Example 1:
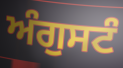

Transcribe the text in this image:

ਅੰਗੁਸਟੰ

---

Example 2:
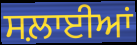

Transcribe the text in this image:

ਸਲ਼ਾਈਆਂ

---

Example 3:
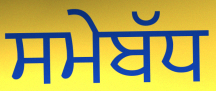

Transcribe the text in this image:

ਸਮੇਬੱਧ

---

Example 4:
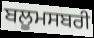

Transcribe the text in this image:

ਬਲੂਮਸਬਰੀ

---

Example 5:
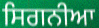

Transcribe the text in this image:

ਸਿਗਨੀਆ